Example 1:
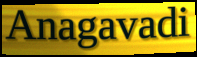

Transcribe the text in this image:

Anagavadi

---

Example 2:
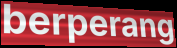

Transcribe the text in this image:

berperang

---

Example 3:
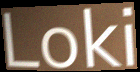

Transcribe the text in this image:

Loki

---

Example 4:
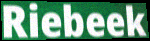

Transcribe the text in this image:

Riebeek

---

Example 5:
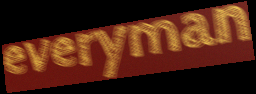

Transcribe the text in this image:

everyman